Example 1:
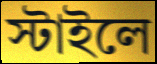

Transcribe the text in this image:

স্টাইলে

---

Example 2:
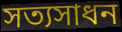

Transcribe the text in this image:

সত্যসাধন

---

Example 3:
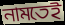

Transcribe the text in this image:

নামতেই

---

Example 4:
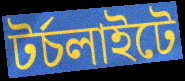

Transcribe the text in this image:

টর্চলাইটে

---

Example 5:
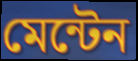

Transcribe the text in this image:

মেন্টেন